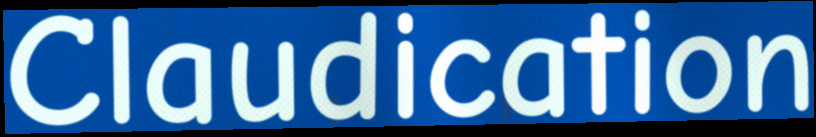
Claudication